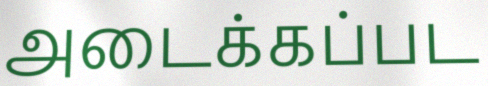
அடைக்கப்பட